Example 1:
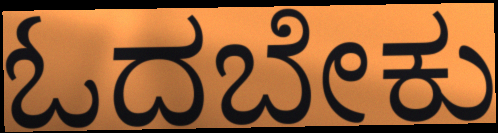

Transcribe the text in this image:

ಓದಬೇಕು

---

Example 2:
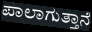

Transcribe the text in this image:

ಪಾಲಾಗುತ್ತಾನೆ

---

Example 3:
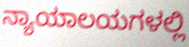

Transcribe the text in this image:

ನ್ಯಾಯಾಲಯಗಳಲ್ಲಿ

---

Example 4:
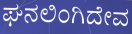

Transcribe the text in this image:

ಘನಲಿಂಗಿದೇವ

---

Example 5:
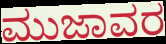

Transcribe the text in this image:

ಮುಜಾವರ